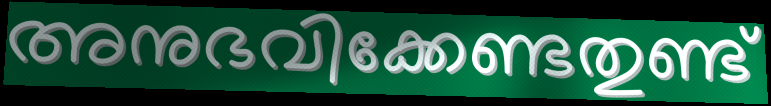
അനുഭവിക്കേണ്ടതുണ്ട്